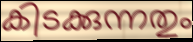
കിടക്കുന്നതും